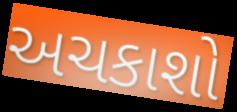
અચકાશો